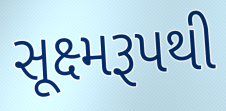
સૂક્ષ્મરૂપથી